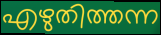
എഴുതിത്തന്ന